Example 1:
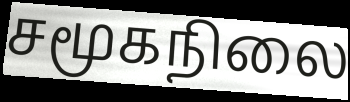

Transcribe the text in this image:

சமூகநிலை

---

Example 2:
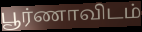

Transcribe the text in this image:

பூர்ணாவிடம்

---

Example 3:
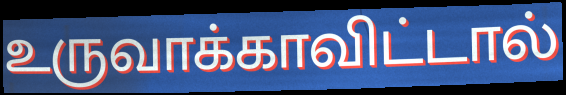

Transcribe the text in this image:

உருவாக்காவிட்டால்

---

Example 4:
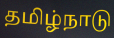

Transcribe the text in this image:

தமிழ்நாடு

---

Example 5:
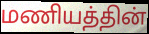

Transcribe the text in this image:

மணியத்தின்